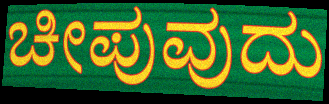
ಚೀಪುವುದು